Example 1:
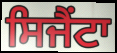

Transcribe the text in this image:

ਸਿਜੈਂਟਾ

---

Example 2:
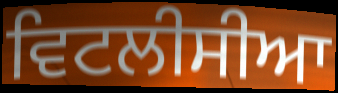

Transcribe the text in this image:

ਵਿਟਲੀਸੀਆ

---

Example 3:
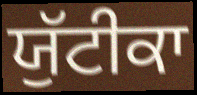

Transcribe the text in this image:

ਯੁੱਟੀਕਾ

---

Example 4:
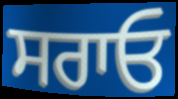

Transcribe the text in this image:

ਸਰਾਓ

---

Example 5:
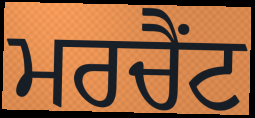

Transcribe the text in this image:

ਮਰਚੈਂਟ